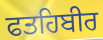
ਫਤਹਿਬੀਰ